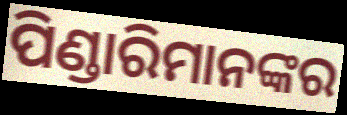
ପିଣ୍ଡାରିମାନଙ୍କର